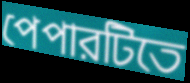
পেপারটিতে